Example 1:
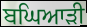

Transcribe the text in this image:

ਬਘਿਆੜੀ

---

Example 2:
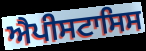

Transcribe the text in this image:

ਐਪੀਸਟਾਸਿਸ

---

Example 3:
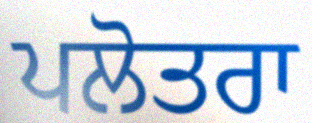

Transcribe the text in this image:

ਪਲੋਤਰਾ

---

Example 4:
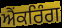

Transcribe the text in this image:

ਐਂਕਰਿੰਗ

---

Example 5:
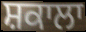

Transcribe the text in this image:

ਸ਼ਕਾਲਾ